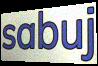
sabuj